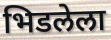
भिडलेला